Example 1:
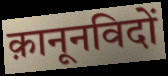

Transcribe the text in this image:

क़ानूनविदों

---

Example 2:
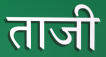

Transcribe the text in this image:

ताजी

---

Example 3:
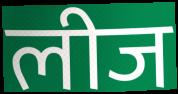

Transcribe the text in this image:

लीज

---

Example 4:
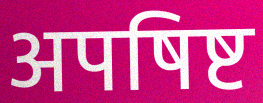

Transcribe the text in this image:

अपषिष्ट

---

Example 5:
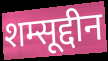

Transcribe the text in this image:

शम्सूद्दीन